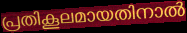
പ്രതികൂലമായതിനാൽ